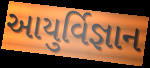
આયુર્વિજ્ઞાન